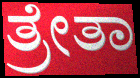
ತ್ರೇತಾ